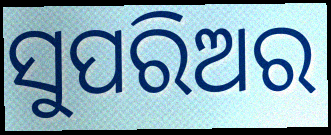
ସୁପରିଅର